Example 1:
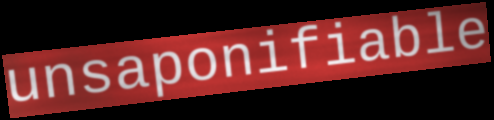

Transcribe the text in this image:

unsaponifiable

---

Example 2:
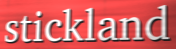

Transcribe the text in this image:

stickland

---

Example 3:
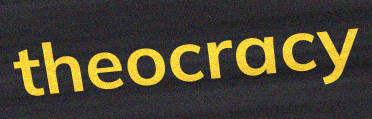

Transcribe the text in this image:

theocracy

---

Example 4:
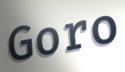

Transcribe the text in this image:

Goro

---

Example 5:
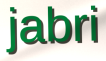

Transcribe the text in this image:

jabri